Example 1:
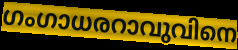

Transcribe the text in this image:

ഗംഗാധരറാവുവിനെ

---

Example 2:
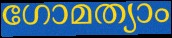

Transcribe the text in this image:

ഗോമത്യാം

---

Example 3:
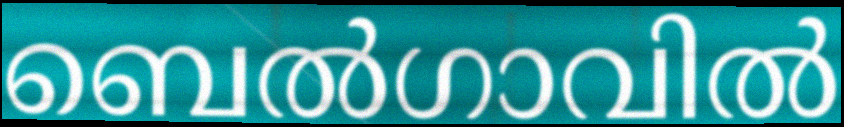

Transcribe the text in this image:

ബെൽഗാവിൽ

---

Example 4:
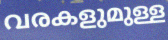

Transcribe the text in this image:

വരകളുമുള്ള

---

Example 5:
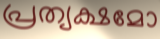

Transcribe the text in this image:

പ്രത്യക്ഷമോ